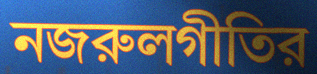
নজরুলগীতির